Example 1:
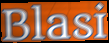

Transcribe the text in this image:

Blasi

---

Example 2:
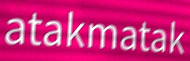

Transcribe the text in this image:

atakmatak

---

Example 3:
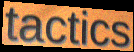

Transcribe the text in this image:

tactics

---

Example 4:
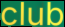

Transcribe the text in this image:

club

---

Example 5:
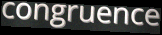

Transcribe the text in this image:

congruence